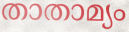
താതാമ്യം